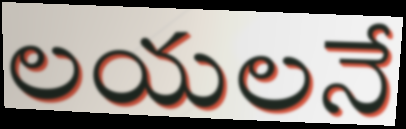
లయలనే